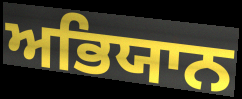
ਅਭਿਯਾਨ